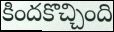
కిందకొచ్చింది